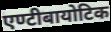
एण्टीबायोटिक